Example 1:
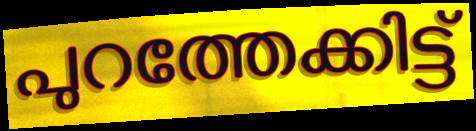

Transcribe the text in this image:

പുറത്തേക്കിട്ട്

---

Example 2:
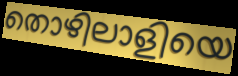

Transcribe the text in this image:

തൊഴിലാളിയെ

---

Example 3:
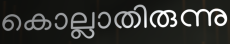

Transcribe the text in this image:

കൊല്ലാതിരുന്നു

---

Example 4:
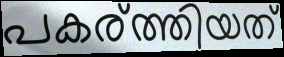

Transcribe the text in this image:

പകര്ത്തിയത്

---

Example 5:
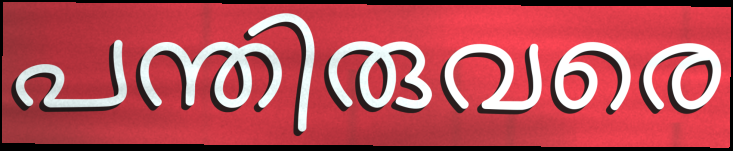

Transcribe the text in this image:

പന്തിരുവരെ